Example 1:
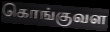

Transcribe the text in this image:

கொங்குவள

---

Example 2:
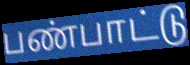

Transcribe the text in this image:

பண்பாட்டு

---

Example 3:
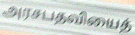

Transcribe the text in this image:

அரசபதவியைத்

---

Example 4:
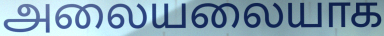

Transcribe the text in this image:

அலையலையாக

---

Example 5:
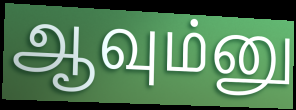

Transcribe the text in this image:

ஆவும்னு